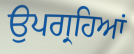
ਉਪਗ੍ਰਹਿਆਂ